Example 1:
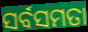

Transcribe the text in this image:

ସର୍ବସମତା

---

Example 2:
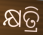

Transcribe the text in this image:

କ୍ଷତ୍ରି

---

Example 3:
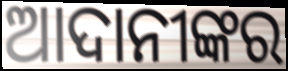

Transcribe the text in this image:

ଆଦାନୀଙ୍କର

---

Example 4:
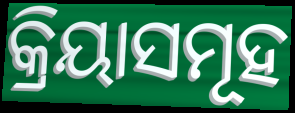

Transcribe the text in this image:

କ୍ରିୟାସମୂହ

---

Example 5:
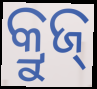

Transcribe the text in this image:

କ୍ରୁଜ୍